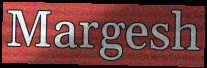
Margesh